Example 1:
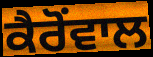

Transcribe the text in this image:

ਕੈਰੋਂਵਾਲ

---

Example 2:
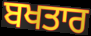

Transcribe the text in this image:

ਬਖਤਾਰ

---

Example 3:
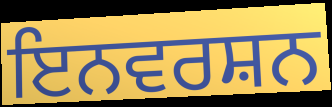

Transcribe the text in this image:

ਇਨਵਰਸ਼ਨ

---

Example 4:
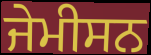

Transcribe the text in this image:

ਜੇਮੀਸਨ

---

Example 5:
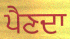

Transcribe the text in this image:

ਪੈਣਦਾ